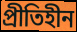
প্রীতিহীন